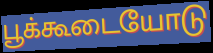
பூக்கூடையோடு